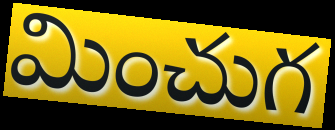
మించుగ